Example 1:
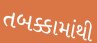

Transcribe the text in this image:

તબક્કામાંથી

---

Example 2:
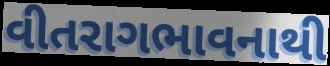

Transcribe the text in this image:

વીતરાગભાવનાથી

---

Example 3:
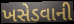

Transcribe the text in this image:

ખસેડવાની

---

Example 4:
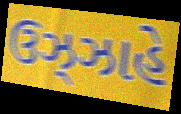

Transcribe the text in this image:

ઉઝ્ઝાહે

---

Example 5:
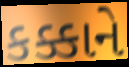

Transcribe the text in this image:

કક્કાને